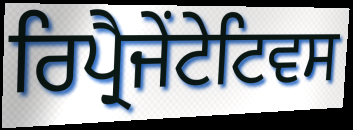
ਰਿਪ੍ਰੈਜੇਂਟੇਟਿਵਸ